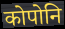
कोपोनि